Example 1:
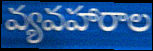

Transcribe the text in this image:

వ్యవహారాల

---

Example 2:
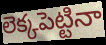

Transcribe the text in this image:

లెక్కపెట్టినా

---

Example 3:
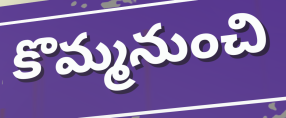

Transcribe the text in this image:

కొమ్మనుంచి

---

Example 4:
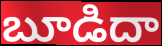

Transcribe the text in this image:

బూడిదా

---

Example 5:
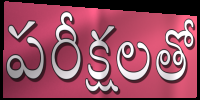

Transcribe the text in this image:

పరీక్షలతో